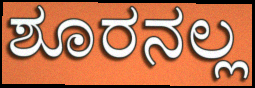
ಶೂರನಲ್ಲ